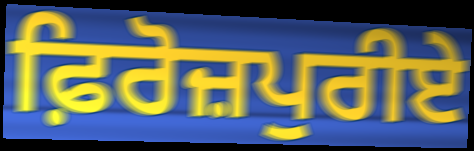
ਫ਼ਿਰੋਜ਼ਪੁਰੀਏ